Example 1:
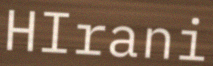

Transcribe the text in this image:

HIrani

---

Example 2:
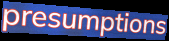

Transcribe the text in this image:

presumptions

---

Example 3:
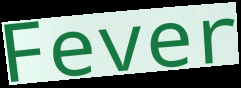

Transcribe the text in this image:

Fever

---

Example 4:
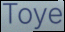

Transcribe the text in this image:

Toye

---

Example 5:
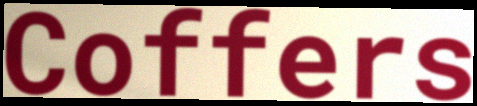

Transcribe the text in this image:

Coffers